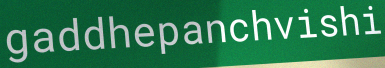
gaddhepanchvishi